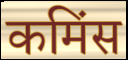
कमिंस